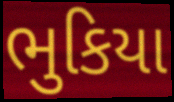
ભુકિયા